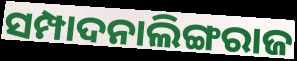
ସମ୍ପାଦନାଲିଙ୍ଗରାଜ